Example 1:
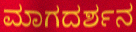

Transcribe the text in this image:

ಮಾಗದರ್ಶನ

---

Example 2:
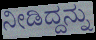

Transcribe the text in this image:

ನೀಡಿದ್ದನ್ನು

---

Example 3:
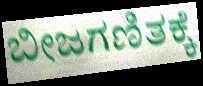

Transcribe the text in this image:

ಬೀಜಗಣಿತಕ್ಕೆ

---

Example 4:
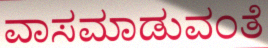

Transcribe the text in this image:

ವಾಸಮಾಡುವಂತೆ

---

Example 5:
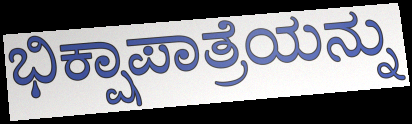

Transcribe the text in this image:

ಭಿಕ್ಷಾಪಾತ್ರೆಯನ್ನು